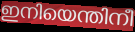
ഇനിയെന്തിനീ